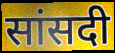
सांसदी